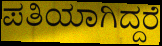
ಪತಿಯಾಗಿದ್ದರೆ